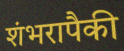
शंभरापैकी